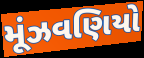
મૂંઝવણિયો